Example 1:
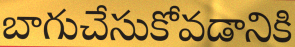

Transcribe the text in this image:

బాగుచేసుకోవడానికి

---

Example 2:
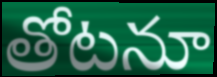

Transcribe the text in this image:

తోటనూ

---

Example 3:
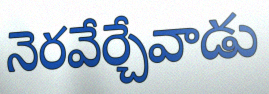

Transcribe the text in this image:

నెరవేర్చేవాడు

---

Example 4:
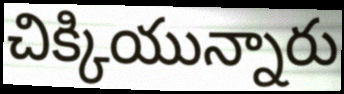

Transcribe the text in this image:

చిక్కియున్నారు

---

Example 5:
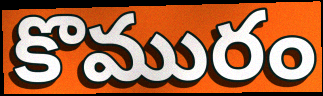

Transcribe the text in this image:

కొమురం